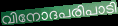
വിനോദപരിപാടി